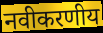
नवीकरणीय